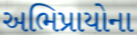
અભિપ્રાયોના